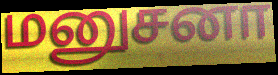
மனுசனா